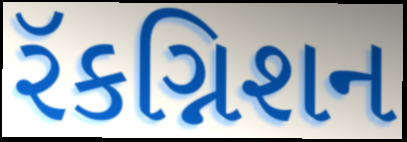
રૅકગ્નિશન